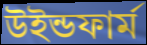
উইন্ডফার্ম